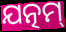
ଯତ୍ନମ୍